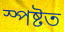
স্পষ্টত